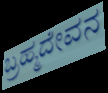
ಬ್ರಹ್ಮದೇವನ